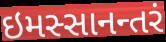
ઇમસ્સાનન્તરં